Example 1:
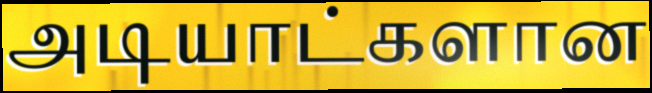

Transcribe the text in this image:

அடியாட்களான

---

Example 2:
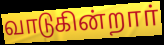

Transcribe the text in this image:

வாடுகின்றார்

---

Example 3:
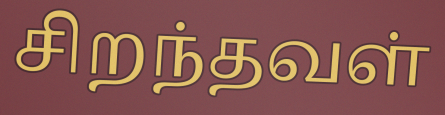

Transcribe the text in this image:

சிறந்தவள்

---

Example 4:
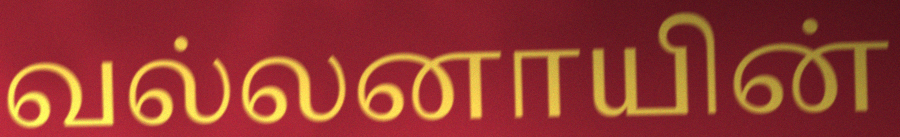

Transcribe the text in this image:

வல்லனாயின்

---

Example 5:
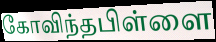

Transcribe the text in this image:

கோவிந்தபிள்ளை